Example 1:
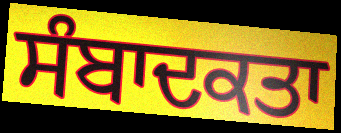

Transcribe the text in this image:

ਸੰਬਾਦਕਤਾ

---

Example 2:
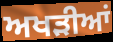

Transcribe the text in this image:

ਅਖੜੀਆਂ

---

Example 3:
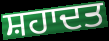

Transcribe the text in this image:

ਸ਼ਹਾਦਤ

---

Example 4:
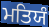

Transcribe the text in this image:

ਮਤਿਯੰ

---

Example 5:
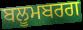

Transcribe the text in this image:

ਬਲੂਮਬਰਗ